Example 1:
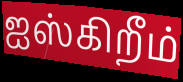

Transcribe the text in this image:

ஐஸ்கிறீம்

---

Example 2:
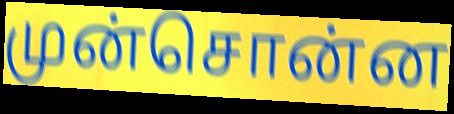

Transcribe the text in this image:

முன்சொன்ன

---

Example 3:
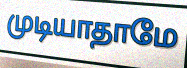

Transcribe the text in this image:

முடியாதாமே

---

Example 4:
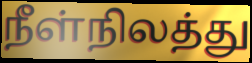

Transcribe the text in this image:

நீள்நிலத்து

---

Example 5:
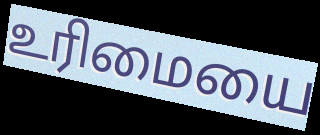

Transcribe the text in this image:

உரிமையை